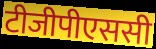
टीजीपीएससी